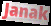
Janak